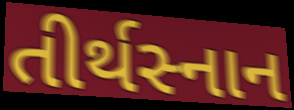
તીર્થસ્નાન